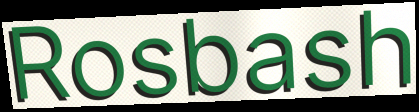
Rosbash